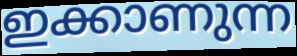
ഇക്കാണുന്ന